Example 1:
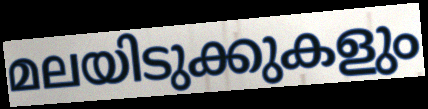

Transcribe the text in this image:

മലയിടുക്കുകളും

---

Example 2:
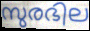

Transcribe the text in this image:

സുരഭില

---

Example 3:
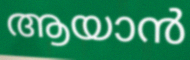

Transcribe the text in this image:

ആയാൻ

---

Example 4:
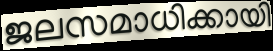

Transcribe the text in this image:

ജലസമാധിക്കായി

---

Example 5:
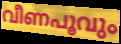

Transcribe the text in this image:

വീണപൂവും